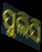
ପୁଲିସି